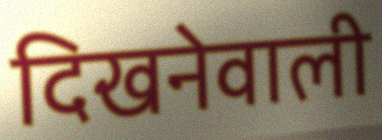
दिखनेवाली